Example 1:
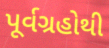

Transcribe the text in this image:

પૂર્વગ્રહોથી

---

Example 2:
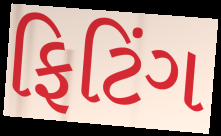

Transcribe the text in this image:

ફિટિંગ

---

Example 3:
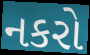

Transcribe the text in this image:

નકરો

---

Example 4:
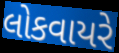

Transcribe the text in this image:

લોકવાયરે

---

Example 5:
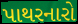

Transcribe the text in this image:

પાથરનારો